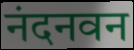
नंदनवन